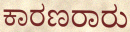
ಕಾರಣರಾರು